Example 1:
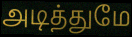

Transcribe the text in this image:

அடித்துமே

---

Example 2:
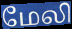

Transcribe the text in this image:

மேலி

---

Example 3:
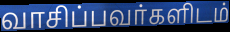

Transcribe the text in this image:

வாசிப்பவர்களிடம்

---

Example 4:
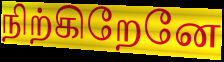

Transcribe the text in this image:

நிற்கிறேனே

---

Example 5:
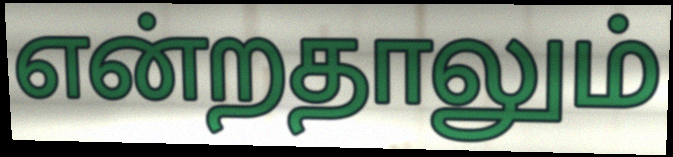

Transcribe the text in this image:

என்றதாலும்